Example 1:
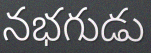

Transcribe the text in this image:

నభగుడు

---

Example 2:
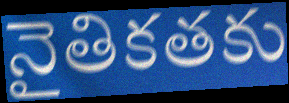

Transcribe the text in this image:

నైతికతకు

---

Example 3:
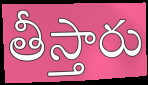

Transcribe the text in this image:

తీస్తారు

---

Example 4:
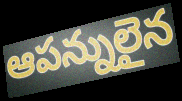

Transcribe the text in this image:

ఆపన్నులైన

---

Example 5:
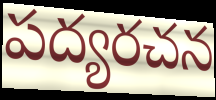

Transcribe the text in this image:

పద్యరచన